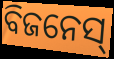
ବିଜନେସ୍